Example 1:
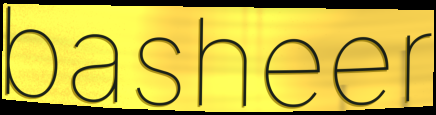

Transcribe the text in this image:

basheer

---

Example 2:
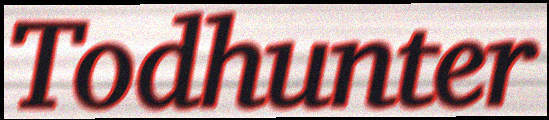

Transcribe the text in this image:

Todhunter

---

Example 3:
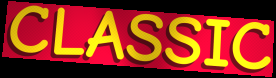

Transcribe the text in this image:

CLASSIC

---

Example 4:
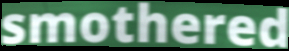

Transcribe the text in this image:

smothered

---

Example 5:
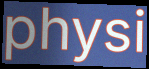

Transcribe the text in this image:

physi